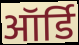
ऑर्डि